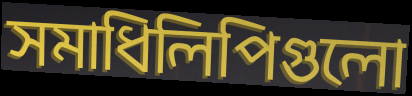
সমাধিলিপিগুলো